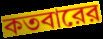
কতবারের